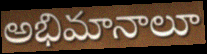
అభిమానాలూ